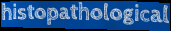
histopathological